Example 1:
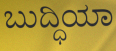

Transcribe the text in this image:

ಬುದ್ಧಿಯಾ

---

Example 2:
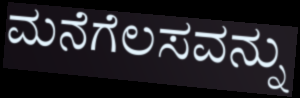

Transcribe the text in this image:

ಮನೆಗೆಲಸವನ್ನು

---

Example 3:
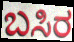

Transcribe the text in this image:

ಬಸಿರ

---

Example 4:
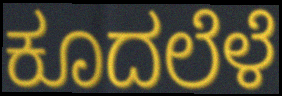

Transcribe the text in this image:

ಕೂದಲೆಳೆ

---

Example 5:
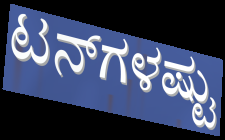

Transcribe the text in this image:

ಟನ್‌ಗಳಷ್ಟು